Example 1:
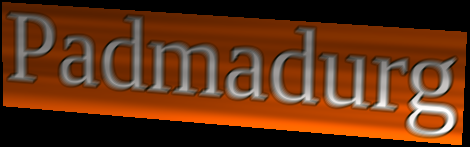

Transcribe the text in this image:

Padmadurg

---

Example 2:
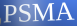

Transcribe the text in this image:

PSMA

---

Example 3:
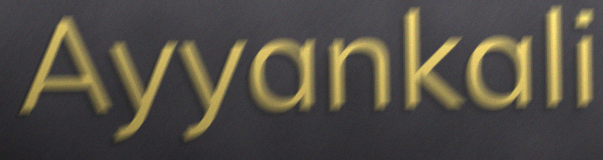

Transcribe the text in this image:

Ayyankali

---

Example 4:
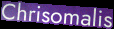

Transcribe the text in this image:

Chrisomalis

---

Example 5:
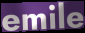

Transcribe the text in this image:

emile